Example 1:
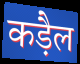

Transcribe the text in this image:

कड़ैल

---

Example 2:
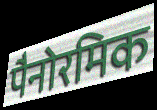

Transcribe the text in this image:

पैनोरमिक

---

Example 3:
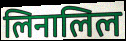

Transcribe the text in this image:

लिनालिल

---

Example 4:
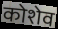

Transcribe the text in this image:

कोशेव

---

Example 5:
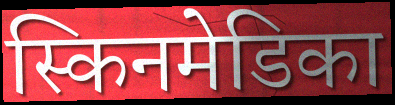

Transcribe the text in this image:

स्किनमेडिका